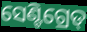
ସେଣ୍ଟିଗ୍ରେଡ୍